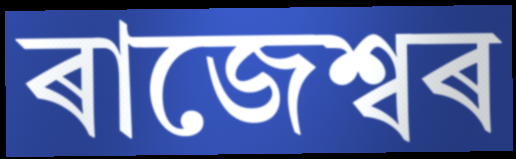
ৰাজেশ্বৰ